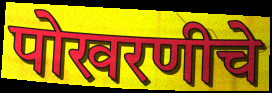
पोखरणीचे